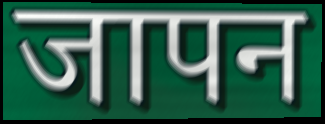
जापन